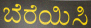
ಬೆರೆಯಿಸಿ